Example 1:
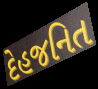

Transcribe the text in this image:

દેહજનિત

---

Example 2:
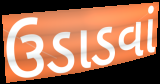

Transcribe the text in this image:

ઉડાડવાં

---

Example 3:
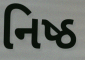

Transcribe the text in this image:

નિષ્ઠ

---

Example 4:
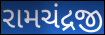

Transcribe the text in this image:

રામચંદ્રજી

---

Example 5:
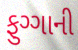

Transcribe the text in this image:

ફુગ્ગાની